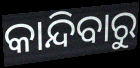
କାନ୍ଦିବାରୁ